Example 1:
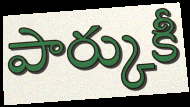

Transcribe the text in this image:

పార్కుకీ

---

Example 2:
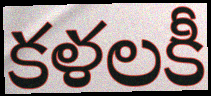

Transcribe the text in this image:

కళలకీ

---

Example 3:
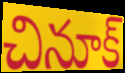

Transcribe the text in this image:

చినూక్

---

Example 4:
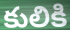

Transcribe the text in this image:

కులికి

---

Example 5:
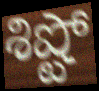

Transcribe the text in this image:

శిష్టో